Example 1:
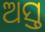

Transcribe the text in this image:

ଅସ୍ତ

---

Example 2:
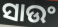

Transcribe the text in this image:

ସାଉଂ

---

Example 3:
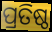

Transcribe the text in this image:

ପ୍ରତିଷ୍ଠ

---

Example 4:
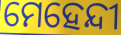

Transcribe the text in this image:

ମେହେନ୍ଦୀ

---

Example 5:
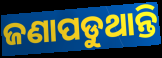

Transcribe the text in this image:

ଜଣାପଡୁଥାନ୍ତି